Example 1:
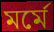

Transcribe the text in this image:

মৰ্মে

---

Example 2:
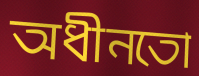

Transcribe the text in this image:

অধীনতো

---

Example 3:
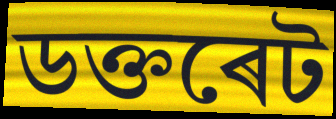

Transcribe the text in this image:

ডক্তৰেট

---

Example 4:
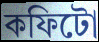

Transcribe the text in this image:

কফিটো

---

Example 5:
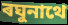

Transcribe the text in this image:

ৰঘুনাথে